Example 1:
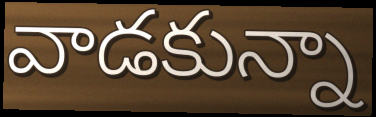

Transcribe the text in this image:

వాడకున్నా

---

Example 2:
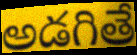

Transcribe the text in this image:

అడగితే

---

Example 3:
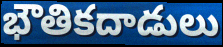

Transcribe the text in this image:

భౌతికదాడులు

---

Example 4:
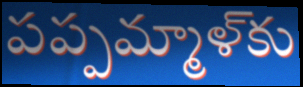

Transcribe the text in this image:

పప్పమ్మాళ్‌కు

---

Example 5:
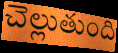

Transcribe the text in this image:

చెల్లుతుంది